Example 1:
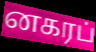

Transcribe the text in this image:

னகரப்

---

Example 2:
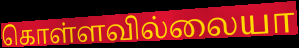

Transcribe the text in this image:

கொள்ளவில்லையா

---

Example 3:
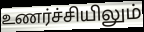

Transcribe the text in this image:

உணர்ச்சியிலும்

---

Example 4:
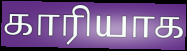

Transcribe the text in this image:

காரியாக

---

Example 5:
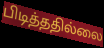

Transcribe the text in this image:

பிடித்ததில்லை